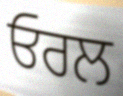
ਓਰਲ